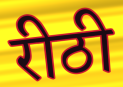
रीठी